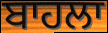
ਬਾਹਲਾ